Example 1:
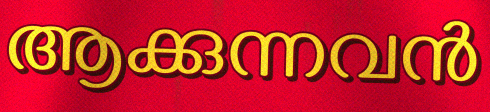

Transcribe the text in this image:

ആക്കുന്നവൻ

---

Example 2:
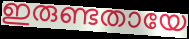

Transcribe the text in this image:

ഇരുണ്ടതായേ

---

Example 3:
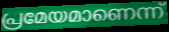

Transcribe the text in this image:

പ്രമേയമാണെന്ന്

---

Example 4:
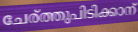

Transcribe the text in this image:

ചേര്ത്തുപിടിക്കാന്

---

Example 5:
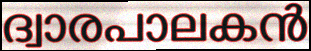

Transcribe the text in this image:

ദ്വാരപാലകൻ